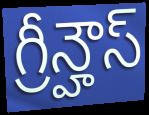
గ్రీన్హౌస్